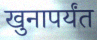
खुनापर्यंत